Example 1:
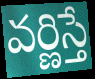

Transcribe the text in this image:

వర్ణిస్తే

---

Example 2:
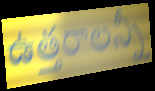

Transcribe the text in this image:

ఉత్తరాలన్నీ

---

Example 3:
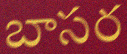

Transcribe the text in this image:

బాసర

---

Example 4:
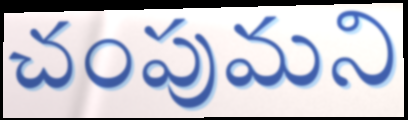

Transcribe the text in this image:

చంపుమని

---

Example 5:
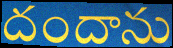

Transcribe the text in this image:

దందాను